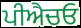
ਪੀਐਚਓ